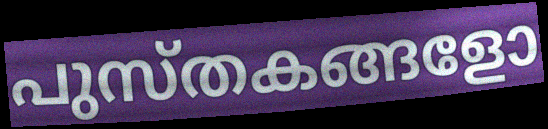
പുസ്തകങ്ങളോ